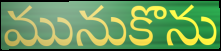
మునుకొను